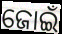
ଜୋଇଁ